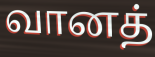
வானத்